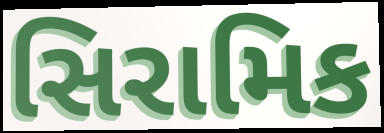
સિરામિક